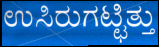
ಉಸಿರುಗಟ್ಟಿತ್ತು